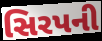
સિરપની